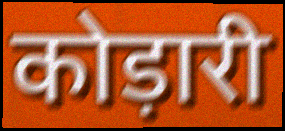
कोड़ारी